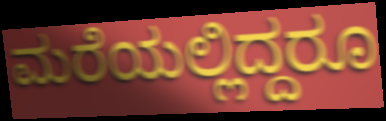
ಮರೆಯಲ್ಲಿದ್ದರೂ